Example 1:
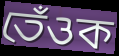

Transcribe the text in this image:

তেঁওক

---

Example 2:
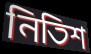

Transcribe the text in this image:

নিতিশ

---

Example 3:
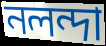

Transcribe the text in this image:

নলন্দা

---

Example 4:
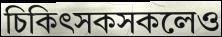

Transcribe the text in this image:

চিকিৎসকসকলেও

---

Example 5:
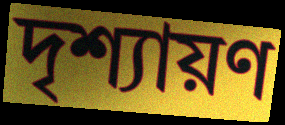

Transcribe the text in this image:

দৃশ্যায়ণ